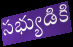
సభ్యుడికి